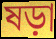
ষড়া